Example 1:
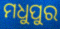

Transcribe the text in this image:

ମଧୁପୁର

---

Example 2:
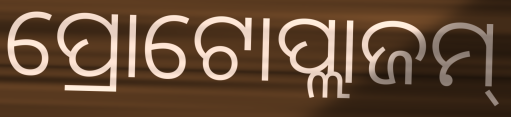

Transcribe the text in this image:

ପ୍ରୋଟୋପ୍ଲାଜମ୍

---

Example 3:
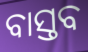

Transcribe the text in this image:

ବାସ୍ତବ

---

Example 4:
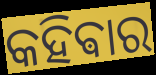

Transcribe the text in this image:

କହିଵାର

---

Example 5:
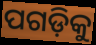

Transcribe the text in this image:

ପଗଡ଼ିକୁ